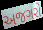
અજગરો